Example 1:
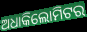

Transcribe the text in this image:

ଅଧାକିଲୋମିଟର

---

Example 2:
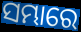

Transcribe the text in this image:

ସମ୍ଭାରେ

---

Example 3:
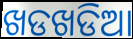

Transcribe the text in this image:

ଖଡଖଡିଆ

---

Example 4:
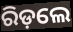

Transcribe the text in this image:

ରିଡ଼ଲେ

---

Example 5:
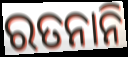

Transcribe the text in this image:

ରତନାନି